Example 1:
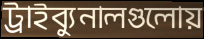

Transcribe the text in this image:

ট্রাইব্যুনালগুলোয়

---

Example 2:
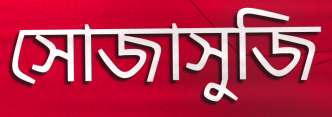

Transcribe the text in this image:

সোজাসুজি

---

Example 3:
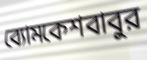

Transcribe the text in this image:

ব্যোমকেশবাবুর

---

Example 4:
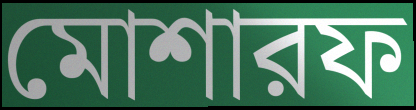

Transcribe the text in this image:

মোশারফ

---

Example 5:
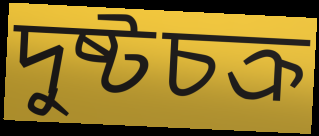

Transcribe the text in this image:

দুষ্টচক্র